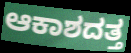
ಆಕಾಶದತ್ತ